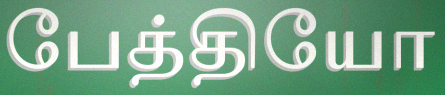
பேத்தியோ